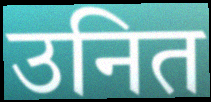
उनित